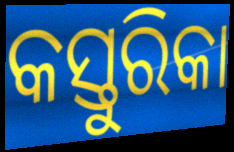
କସ୍ତୁରିକା